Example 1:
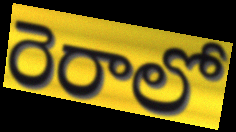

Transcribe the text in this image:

రెరాలో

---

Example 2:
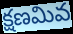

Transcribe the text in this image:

క్షణమివ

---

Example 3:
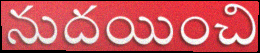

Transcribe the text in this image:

నుదయించి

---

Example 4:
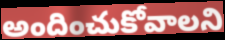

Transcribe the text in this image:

అందించుకోవాలని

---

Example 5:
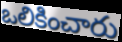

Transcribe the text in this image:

ఒలికించారు